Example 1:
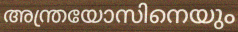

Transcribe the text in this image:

അന്ത്രയോസിനെയും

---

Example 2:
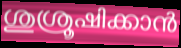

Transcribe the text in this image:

ശുശ്രൂഷിക്കാൻ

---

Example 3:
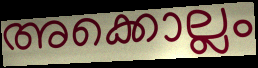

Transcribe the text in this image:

അക്കൊല്ലം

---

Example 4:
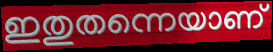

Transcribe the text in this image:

ഇതുതന്നെയാണ്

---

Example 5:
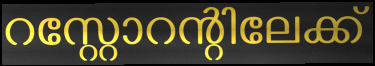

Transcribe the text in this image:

റസ്റ്റോറന്റിലേക്ക്